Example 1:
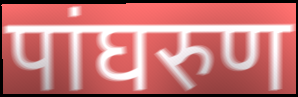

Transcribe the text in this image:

पांघरुण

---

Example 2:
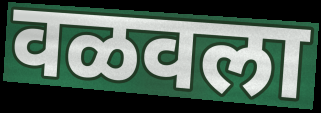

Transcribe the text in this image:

वळवला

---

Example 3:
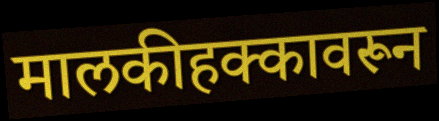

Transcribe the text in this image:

मालकीहक्कावरून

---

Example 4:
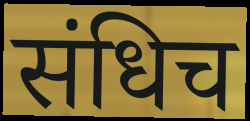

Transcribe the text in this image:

संधिच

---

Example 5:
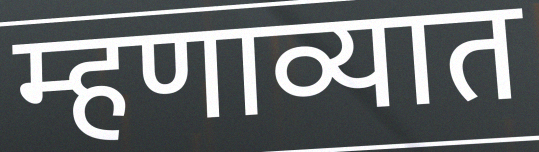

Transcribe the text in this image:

म्हणाव्यात